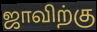
ஜாவிற்கு